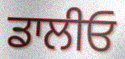
ਡਾਲੀਓ